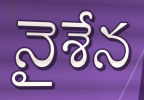
నైశేన